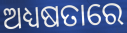
ଅଧ୍ୟଷତାରେ